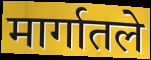
मार्गातले